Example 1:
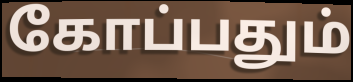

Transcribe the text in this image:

கோப்பதும்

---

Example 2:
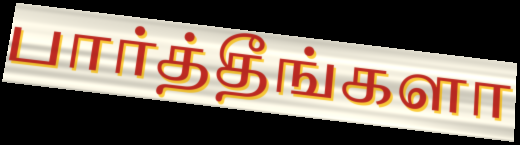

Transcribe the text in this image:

பார்த்தீங்களா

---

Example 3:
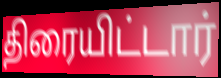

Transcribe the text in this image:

திரையிட்டார்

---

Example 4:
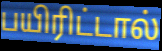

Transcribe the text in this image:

பயிரிட்டால்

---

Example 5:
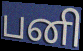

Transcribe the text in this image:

பனி